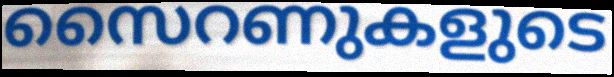
സൈറണുകളുടെ